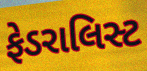
ફેડરાલિસ્ટ